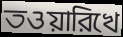
তওয়ারিখে